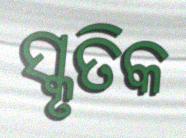
ସ୍କୃତିକ